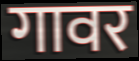
गावर